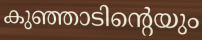
കുഞ്ഞാടിന്റെയും